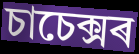
চাচেক্সৰ